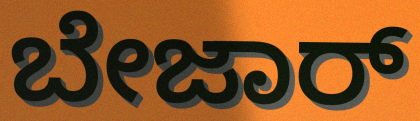
ಬೇಜಾರ್